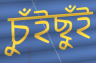
চুঁইছুঁই